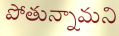
పోతున్నామని